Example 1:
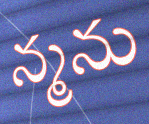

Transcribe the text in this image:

న్మను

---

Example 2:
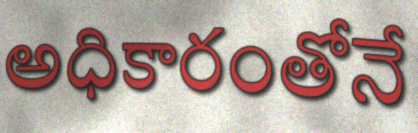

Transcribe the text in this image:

అధికారంతోనే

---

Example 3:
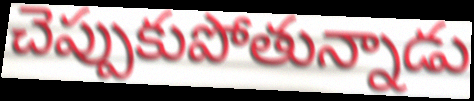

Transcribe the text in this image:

చెప్పుకుపోతున్నాడు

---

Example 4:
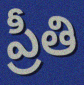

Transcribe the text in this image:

ప్రీతి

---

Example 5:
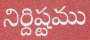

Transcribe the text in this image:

నిర్దిష్టము